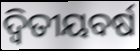
ଦ୍ୱିତୀୟବର୍ଷ